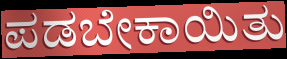
ಪಡಬೇಕಾಯಿತು